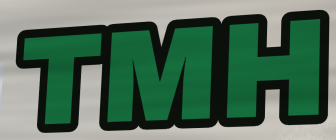
TMH